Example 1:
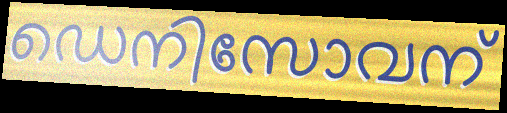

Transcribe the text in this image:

ഡെനിസോവന്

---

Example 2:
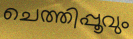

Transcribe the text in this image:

ചെത്തിപ്പൂവും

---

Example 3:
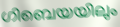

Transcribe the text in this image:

ഗിബെയയിലും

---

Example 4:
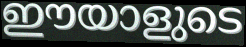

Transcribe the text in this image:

ഈയാളുടെ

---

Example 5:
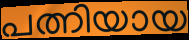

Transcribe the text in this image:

പത്നിയായ